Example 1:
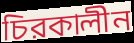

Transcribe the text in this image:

চিরকালীন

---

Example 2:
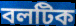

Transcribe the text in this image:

বলটিক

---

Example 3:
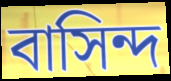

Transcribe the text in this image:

বাসিন্দ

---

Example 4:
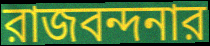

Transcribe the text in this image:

রাজবন্দনার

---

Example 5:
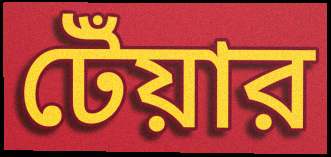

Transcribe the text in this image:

টেঁয়ার